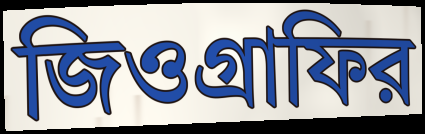
জিওগ্রাফির